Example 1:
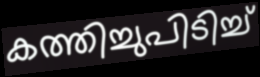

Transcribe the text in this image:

കത്തിച്ചുപിടിച്ച്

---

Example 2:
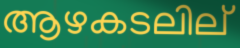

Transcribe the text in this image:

ആഴകടലില്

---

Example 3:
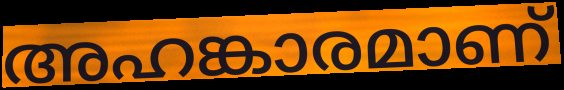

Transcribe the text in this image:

അഹങ്കാരമാണ്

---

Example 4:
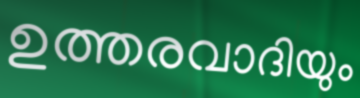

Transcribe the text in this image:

ഉത്തരവാദിയും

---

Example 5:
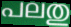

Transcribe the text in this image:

പലതു